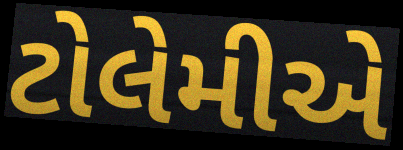
ટોલેમીએ